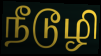
நீடூழி